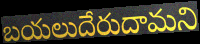
బయలుదేరుదామని